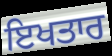
ਇਖਤਾਰ